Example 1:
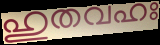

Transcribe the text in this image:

ഹുതവഹഃ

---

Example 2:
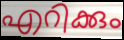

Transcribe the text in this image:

എറിക്കും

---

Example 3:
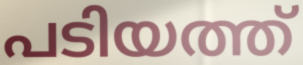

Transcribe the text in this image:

പടിയത്ത്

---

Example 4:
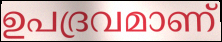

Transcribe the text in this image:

ഉപദ്രവമാണ്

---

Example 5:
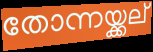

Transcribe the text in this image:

തോന്നയ്ക്കല്